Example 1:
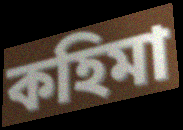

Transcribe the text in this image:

কহিমা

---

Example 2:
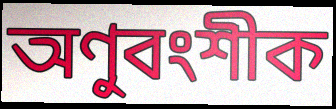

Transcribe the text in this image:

অণুবংশীক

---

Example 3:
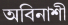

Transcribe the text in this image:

অবিনাশী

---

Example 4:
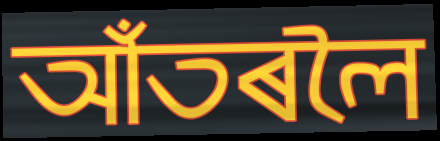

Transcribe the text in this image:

আঁতৰলৈ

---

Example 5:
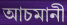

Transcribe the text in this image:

আচমানী